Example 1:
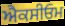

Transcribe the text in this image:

ਐਕਸੀਓਮ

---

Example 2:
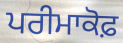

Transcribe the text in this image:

ਪਰੀਮਾਕੋਫ਼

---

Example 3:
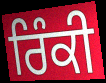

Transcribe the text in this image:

ਰਿੰਕੀ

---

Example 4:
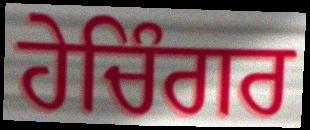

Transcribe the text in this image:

ਹੇਚਿੰਗਰ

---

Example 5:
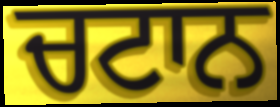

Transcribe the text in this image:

ਚਟਾਨ